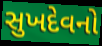
સુખદેવનો